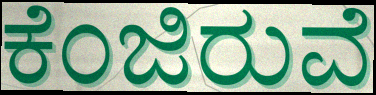
ಕೆಂಜಿರುವೆ